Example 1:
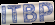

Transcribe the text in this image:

ITBP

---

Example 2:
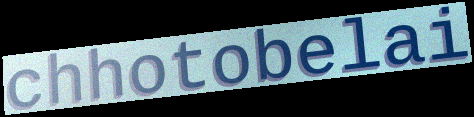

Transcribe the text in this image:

chhotobelai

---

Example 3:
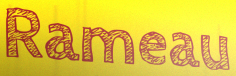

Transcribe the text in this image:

Rameau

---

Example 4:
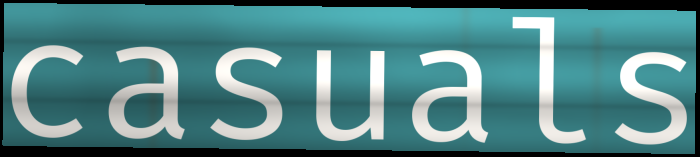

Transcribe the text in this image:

casuals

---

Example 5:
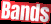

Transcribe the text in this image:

Bands